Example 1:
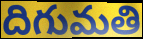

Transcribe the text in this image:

దిగుమతి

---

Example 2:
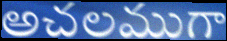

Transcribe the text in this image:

అచలముగా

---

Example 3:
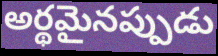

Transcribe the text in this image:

అర్థమైనప్పుడు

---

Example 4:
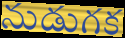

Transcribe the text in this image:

నుడుగక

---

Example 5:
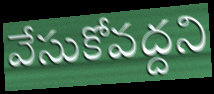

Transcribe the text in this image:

వేసుకోవద్దని